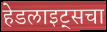
हेडलाइट्सचा